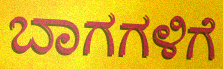
ಬಾಗಗಳಿಗೆ